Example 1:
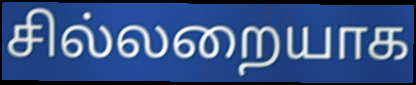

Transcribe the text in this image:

சில்லறையாக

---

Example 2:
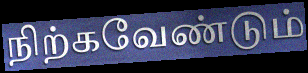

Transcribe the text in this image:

நிற்கவேண்டும்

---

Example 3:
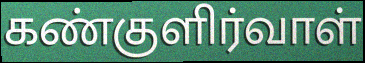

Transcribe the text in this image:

கண்குளிர்வாள்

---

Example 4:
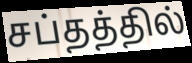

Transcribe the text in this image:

சப்தத்தில்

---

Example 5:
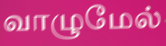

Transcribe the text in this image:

வாழுமேல்